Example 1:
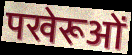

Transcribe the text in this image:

पखेरूओं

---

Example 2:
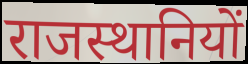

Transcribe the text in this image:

राजस्थानियों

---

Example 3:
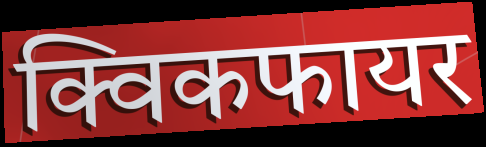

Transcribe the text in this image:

क्विकफायर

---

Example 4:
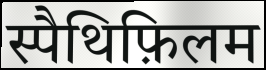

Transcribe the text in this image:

स्पैथिफ़िलम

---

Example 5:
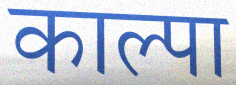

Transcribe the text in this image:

काल्पा